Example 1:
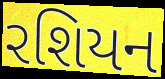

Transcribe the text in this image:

રશિયન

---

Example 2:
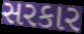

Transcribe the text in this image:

સરકાર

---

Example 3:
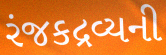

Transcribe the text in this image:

રંજકદ્રવ્યની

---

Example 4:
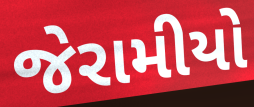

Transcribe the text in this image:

જેરામીયો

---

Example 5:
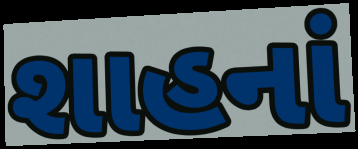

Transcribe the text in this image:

શાહનાં